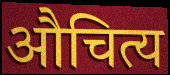
औचित्‍य